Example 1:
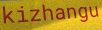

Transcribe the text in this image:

kizhangu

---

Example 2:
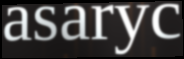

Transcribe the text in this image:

asaryc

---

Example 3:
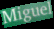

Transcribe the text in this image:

Miguel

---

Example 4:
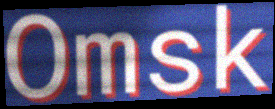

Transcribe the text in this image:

Omsk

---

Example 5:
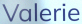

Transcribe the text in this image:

Valerie